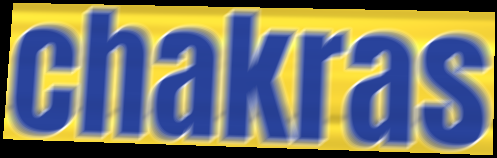
chakras